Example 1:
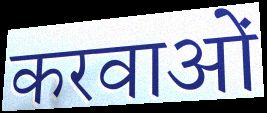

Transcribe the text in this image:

करवाओं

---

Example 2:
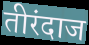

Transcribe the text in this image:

तीरंदाज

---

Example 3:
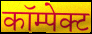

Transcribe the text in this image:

कॉम्पेक्ट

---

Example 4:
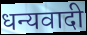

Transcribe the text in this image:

धन्यवादी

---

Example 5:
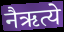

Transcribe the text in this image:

नैऋत्ये